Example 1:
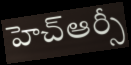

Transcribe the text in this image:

హెచ్ఆర్సీ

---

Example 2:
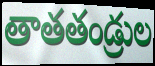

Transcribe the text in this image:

తాతతండ్రుల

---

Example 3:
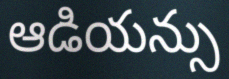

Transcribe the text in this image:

ఆడియన్సు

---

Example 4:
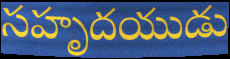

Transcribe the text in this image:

సహృదయుడు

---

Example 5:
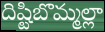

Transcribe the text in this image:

దిష్టిబొమ్మల్లా